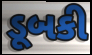
ડૂબકી